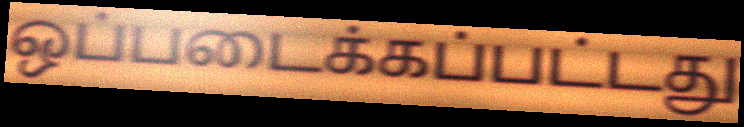
ஒப்படைக்கப்பட்டது